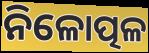
ନିଳୋତ୍ପଳ